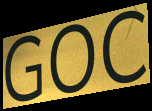
GOC